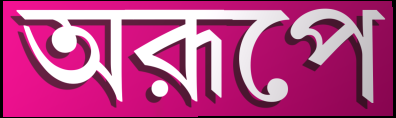
অরূপে